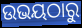
ଉଭୟଠାରୁ